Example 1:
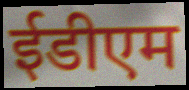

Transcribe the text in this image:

ईडीएम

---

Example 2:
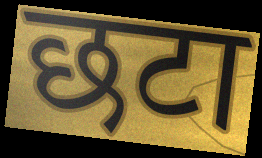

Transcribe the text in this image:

छटा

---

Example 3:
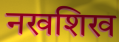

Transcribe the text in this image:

नखशिख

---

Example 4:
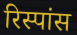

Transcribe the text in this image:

रिस्पांस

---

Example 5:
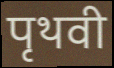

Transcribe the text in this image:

पृथवी